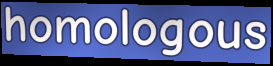
homologous